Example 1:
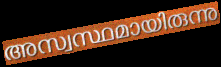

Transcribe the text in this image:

അസ്വസ്ഥമായിരുന്നു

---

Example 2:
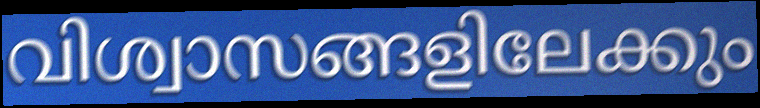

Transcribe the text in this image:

വിശ്വാസങ്ങളിലേക്കും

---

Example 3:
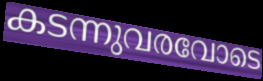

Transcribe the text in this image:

കടന്നുവരവോടെ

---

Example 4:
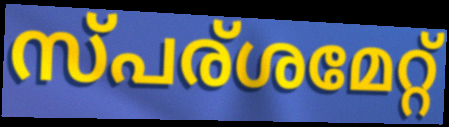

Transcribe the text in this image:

സ്പര്ശമേറ്റ്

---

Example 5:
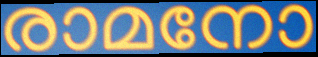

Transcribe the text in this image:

രാമനോ